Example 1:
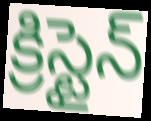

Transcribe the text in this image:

క్రిస్టైన్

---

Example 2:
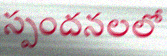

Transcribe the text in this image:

స్పందనలలో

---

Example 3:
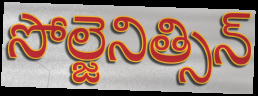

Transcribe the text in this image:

సోల్జెనిత్సిన్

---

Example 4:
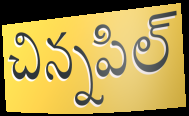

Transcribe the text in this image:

చిన్నపిల్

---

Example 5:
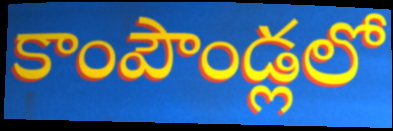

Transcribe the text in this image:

కాంపౌండ్లలో